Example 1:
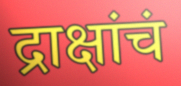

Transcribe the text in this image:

द्राक्षांचं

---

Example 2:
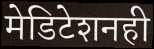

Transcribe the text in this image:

मेडिटेशनही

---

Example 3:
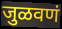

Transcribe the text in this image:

जुळवणं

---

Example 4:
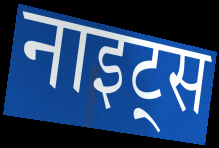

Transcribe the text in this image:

नाइट्‌स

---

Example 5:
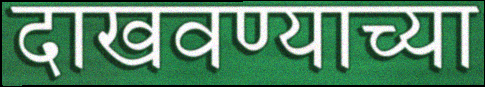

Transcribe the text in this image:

दाखवण्याच्या